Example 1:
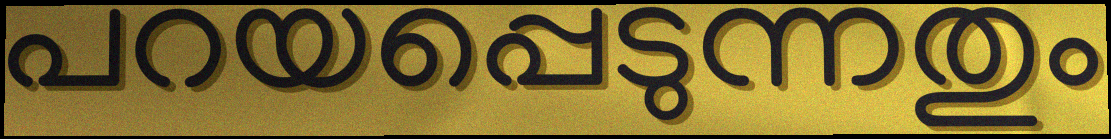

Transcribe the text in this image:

പറയപ്പെടുന്നതും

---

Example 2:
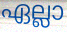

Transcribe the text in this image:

ഏല്ലാ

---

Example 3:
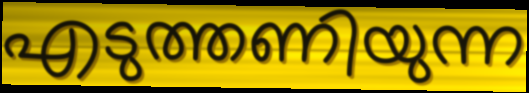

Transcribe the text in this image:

എടുത്തണിയുന്ന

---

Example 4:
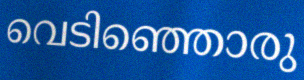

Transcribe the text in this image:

വെടിഞ്ഞൊരു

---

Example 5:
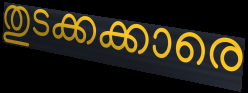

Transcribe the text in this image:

തുടക്കക്കാരെ